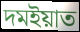
দমইয়াত